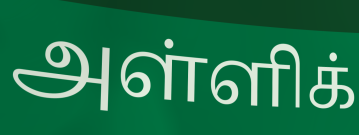
அள்ளிக்